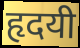
हृदयी